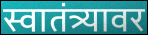
स्वातंत्र्यावर